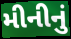
મીનીનું